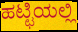
ಹಟ್ಟಿಯಲ್ಲಿ